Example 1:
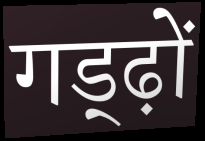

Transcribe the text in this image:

गड्‌ढ़ों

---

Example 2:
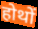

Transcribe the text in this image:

होथों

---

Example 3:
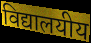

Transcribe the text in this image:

विद्यालयीय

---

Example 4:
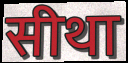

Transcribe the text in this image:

सीथा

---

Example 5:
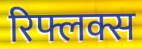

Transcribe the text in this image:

रिफ्लक्स